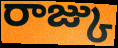
రాజ్కు